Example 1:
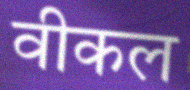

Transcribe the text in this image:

वीकल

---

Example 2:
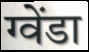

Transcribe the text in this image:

ग्वेंडा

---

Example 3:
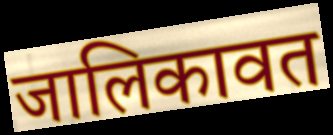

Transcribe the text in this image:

जालिकावत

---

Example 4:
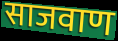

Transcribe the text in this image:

साजवाण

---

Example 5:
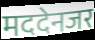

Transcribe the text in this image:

मददेनजर